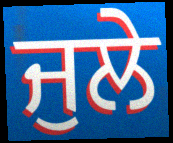
ਜੁਲੇ